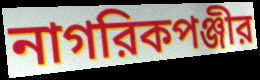
নাগরিকপঞ্জীর